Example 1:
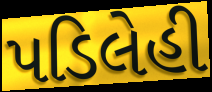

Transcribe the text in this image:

પડિલેહી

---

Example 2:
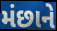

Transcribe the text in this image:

મંછાને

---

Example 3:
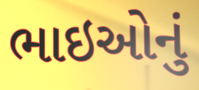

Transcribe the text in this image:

ભાઇઓનું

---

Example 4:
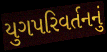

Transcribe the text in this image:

યુગપરિવર્તનનું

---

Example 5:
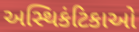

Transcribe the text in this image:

અસ્થિકંટિકાઓ